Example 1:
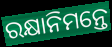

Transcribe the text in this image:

ରକ୍ଷାନିମନ୍ତେ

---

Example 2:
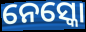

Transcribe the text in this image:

ନେସ୍କୋ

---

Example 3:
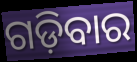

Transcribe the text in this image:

ଗଡ଼ିବାର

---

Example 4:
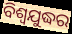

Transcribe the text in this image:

ବିଶ୍ବଯୁଦ୍ଧର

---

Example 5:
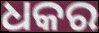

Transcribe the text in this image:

ଧକର